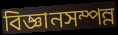
বিজ্ঞানসম্পন্ন